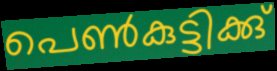
പെൺകുട്ടിക്കു്